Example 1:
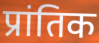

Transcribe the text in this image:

प्रांतिक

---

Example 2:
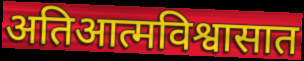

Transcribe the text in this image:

अतिआत्मविश्वासात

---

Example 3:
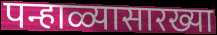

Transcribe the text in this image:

पन्हाळ्यासारख्या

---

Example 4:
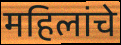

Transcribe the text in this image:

महिलांचे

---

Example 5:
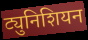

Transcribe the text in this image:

ट्युनिशियन